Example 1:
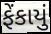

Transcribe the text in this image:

ફેંકાયું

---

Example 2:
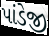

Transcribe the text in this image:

પાંડેજી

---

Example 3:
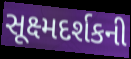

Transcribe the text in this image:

સૂક્ષ્મદર્શકની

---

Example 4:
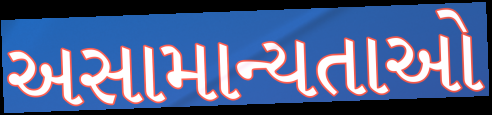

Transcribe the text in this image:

અસામાન્યતાઓ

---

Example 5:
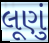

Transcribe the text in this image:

લૂણું